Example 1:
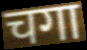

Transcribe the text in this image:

चगा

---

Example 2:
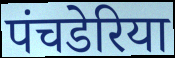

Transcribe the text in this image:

पंचडेरिया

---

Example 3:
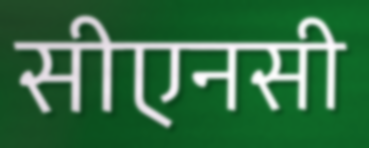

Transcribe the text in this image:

सीएनसी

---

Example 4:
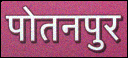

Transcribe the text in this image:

पोतनपुर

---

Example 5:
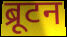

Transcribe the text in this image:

ब्रूटन